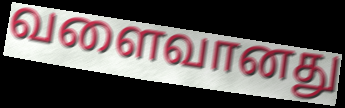
வளைவானது